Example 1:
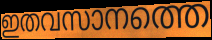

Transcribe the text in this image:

ഇതവസാനത്തെ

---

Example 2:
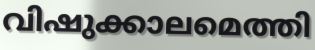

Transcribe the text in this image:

വിഷുക്കാലമെത്തി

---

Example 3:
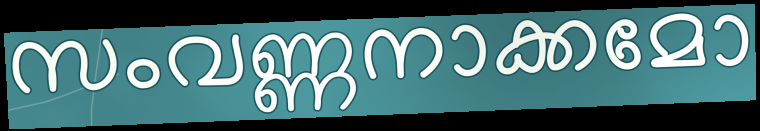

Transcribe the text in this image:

സംവണ്ണനാക്കമോ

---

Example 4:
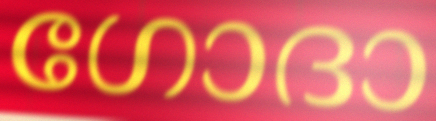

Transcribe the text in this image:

ഗോദാ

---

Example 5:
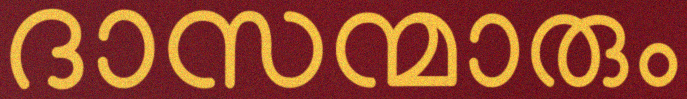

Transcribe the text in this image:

ദാസന്മാരും